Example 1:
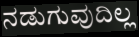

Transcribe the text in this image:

ನಡುಗುವುದಿಲ್ಲ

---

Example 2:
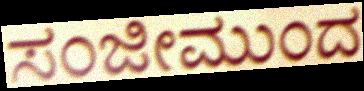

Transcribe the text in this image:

ಸಂಜೀಮುಂದ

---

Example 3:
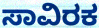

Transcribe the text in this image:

ಸಾವಿರಕ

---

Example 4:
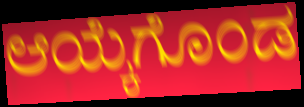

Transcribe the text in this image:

ಆಯ್ಕೆಗೊಂಡ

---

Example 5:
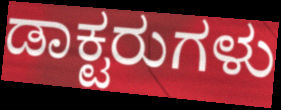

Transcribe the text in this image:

ಡಾಕ್ಟರುಗಳು